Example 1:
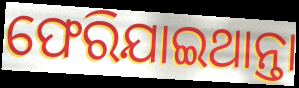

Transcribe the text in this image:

ଫେରିଯାଇଥାନ୍ତା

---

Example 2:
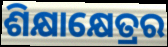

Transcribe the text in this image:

ଶିକ୍ଷାକ୍ଷେତ୍ରର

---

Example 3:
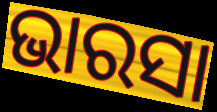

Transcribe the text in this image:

ଭାରସା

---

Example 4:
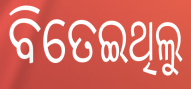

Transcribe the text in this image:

ବିତେଇଥିଲୁ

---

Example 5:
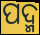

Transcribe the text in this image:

ପଦ୍ମ